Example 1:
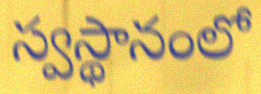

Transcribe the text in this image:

స్వస్థానంలో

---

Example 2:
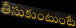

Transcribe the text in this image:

తీసుకుంటుంటే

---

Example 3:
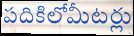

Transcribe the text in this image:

పదికిలోమీటర్లు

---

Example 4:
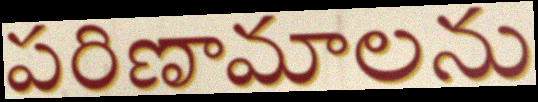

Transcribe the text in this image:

పరిణామాలను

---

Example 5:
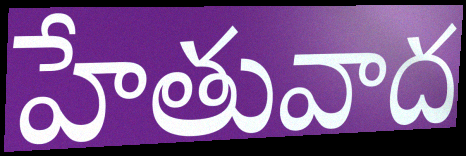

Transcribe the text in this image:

హేతువాద